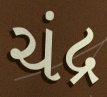
ચંદ્ર